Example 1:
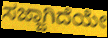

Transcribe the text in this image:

ಸಜ್ಜಾಗಿದೆಯೇ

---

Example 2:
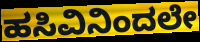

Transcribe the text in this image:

ಹಸಿವಿನಿಂದಲೇ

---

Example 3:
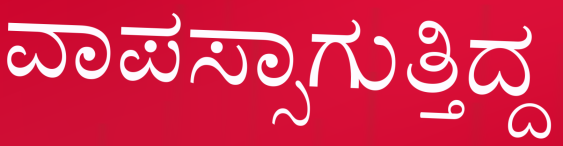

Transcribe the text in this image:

ವಾಪಸ್ಸಾಗುತ್ತಿದ್ದ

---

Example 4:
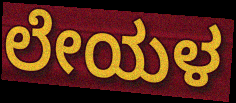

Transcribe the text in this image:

ಲೇಯಳ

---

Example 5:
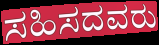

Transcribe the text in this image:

ಸಹಿಸದವರು